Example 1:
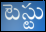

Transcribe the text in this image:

టెస్టు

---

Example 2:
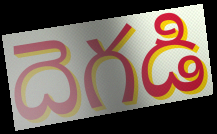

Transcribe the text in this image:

దెగడి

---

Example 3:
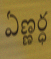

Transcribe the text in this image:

ఏణ్ణర్ధ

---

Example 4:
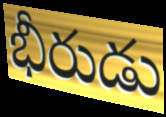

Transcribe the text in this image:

భీరుడు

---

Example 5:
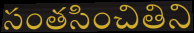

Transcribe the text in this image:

సంతసించితిని